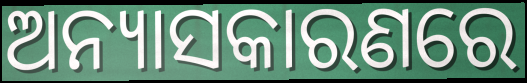
ଅନ୍ୟାସକାରଣରେ